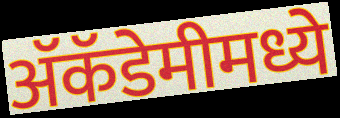
ॲकॅडेमीमध्ये